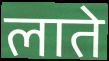
लाते